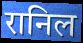
रानिल